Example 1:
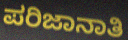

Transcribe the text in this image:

ಪರಿಜಾನಾತಿ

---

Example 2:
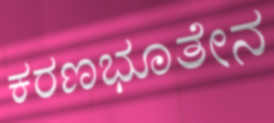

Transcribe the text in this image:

ಕರಣಭೂತೇನ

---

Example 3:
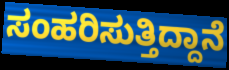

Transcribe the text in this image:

ಸಂಹರಿಸುತ್ತಿದ್ದಾನೆ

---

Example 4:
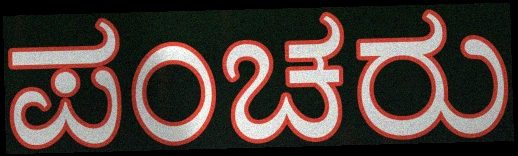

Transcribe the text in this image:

ಪಂಚರು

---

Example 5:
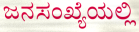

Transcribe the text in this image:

ಜನಸಂಖ್ಯೆಯಲ್ಲಿ